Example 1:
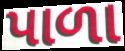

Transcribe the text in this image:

પાળા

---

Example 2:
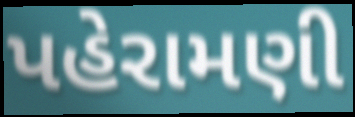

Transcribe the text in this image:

પહેરામણી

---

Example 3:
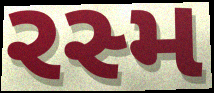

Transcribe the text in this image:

રસ્મ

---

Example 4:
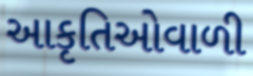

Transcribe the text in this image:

આકૃતિઓવાળી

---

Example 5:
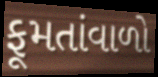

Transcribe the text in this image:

ફૂમતાંવાળો